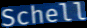
Schell